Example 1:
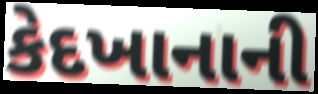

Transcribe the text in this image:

કેદખાનાની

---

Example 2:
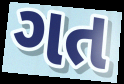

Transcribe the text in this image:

ગત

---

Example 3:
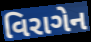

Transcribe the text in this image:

વિરાગેન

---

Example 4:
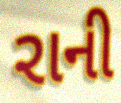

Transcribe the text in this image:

રાની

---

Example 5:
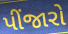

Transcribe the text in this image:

પીંજારો